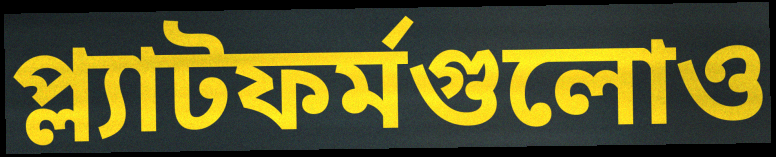
প্ল্যাটফর্মগুলোও